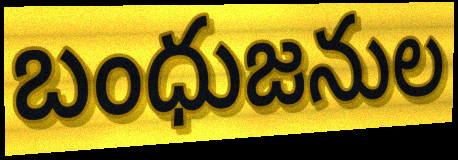
బంధుజనుల